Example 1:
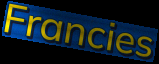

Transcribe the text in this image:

Francies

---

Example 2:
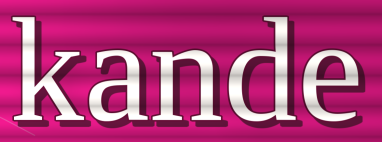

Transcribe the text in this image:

kande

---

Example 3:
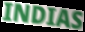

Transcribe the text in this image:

INDIAS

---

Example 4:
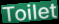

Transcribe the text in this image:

Toilet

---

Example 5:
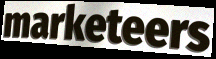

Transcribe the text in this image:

marketeers